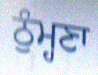
ਠੁੰਮ੍ਹਣਾ